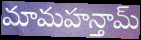
మామహన్తామ్